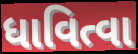
ધાવિત્વા